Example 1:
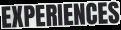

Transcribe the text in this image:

EXPERIENCES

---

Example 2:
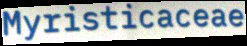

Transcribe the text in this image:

Myristicaceae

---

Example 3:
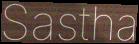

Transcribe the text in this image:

Sastha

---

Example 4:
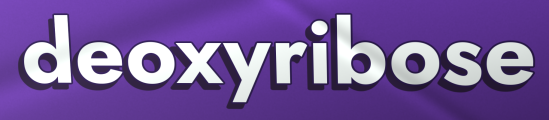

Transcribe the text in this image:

deoxyribose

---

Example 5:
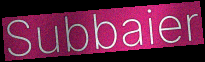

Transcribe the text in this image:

Subbaier